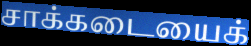
சாக்கடையைக்